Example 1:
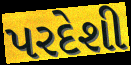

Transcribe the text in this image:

પરદેશી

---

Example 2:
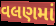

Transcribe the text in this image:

વલણમાં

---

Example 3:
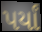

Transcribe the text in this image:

પર્યાં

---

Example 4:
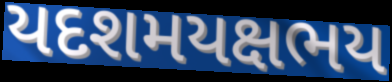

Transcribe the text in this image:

યદશમયક્ષભય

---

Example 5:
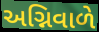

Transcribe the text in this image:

અગ્નિવાળે